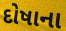
દોષાના